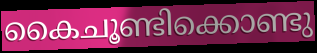
കൈചൂണ്ടിക്കൊണ്ടു